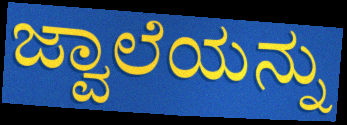
ಜ್ವಾಲೆಯನ್ನು